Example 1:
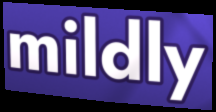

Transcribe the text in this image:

mildly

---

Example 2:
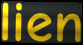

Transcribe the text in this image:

lien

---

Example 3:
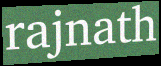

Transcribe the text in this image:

rajnath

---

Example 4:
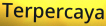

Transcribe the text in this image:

Terpercaya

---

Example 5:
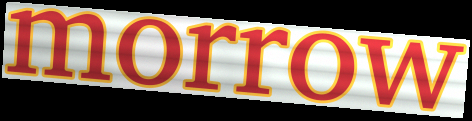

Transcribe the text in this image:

morrow